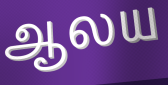
ஆலய